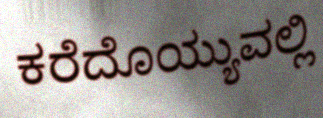
ಕರೆದೊಯ್ಯುವಲ್ಲಿ